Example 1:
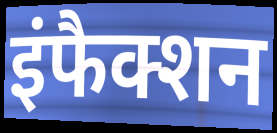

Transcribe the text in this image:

इंफैक्शन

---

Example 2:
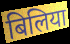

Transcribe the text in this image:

बिलिया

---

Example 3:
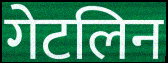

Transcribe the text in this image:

गेटलिन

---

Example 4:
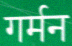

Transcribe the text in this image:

गर्मन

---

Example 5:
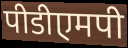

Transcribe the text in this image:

पीडीएमपी